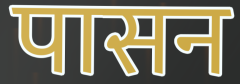
पासन